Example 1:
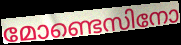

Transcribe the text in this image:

മോണ്ടെസിനോ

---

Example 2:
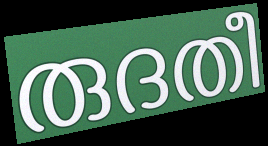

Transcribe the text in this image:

രുദതീ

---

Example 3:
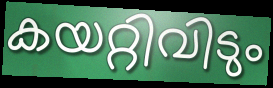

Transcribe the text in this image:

കയറ്റിവിടും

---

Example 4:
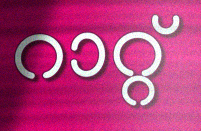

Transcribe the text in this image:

റാറ്റ്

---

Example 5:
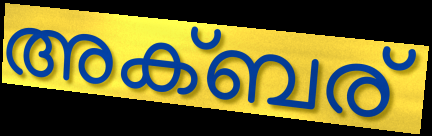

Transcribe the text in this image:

അക്ബര്